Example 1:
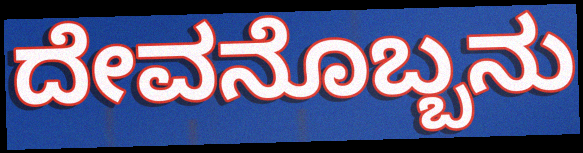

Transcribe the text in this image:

ದೇವನೊಬ್ಬನು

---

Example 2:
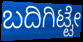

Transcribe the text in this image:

ಬದಿಗಿಟ್ಟೇ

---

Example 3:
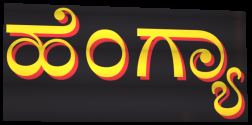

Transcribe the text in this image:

ಹೆಂಗ್ಯಾ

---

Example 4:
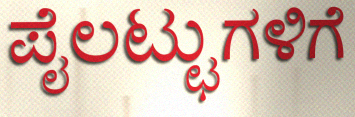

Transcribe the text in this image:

ಪೈಲಟ್ಟುಗಳಿಗೆ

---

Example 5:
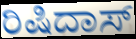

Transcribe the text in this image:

ರಿಷಿದಾಸ್